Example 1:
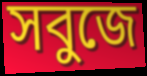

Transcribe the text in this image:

সবুজে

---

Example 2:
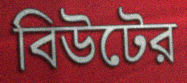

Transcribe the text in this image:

বিউটের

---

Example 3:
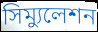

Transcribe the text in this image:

সিম্যুলেশন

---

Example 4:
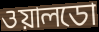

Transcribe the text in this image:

ওয়ালডো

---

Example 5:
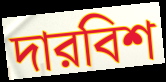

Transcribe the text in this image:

দারবিশ